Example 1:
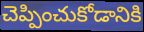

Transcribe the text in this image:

చెప్పించుకోడానికి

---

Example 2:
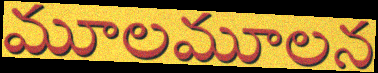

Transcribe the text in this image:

మూలమూలన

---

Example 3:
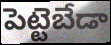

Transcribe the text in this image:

పెట్టెబేడా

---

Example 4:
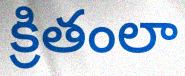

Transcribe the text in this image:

క్రితంలా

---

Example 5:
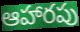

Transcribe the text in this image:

ఆహారపు